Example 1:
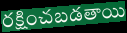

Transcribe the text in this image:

రక్షించబడతాయి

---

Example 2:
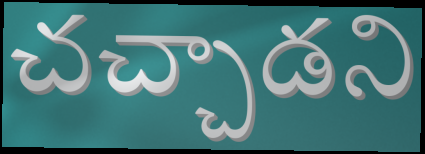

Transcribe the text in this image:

చచ్చాడని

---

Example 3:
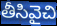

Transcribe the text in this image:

తీసివైచి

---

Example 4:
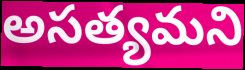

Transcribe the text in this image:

అసత్యమని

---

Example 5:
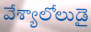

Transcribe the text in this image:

వేశ్యాలోలుడై